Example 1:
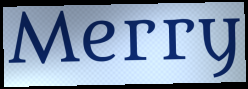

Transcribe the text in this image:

Merry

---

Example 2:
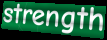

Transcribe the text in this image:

strength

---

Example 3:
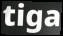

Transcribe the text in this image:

tiga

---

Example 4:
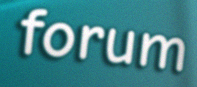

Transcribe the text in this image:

forum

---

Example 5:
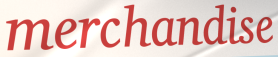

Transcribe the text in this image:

merchandise